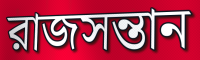
রাজসন্তান